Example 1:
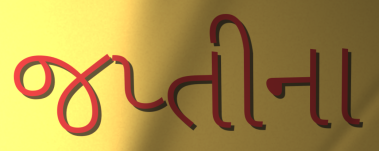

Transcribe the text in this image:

જપ્તીના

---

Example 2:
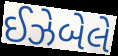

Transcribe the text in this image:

ઈઝેબેલે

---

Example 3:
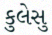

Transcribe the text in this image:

કુલેસુ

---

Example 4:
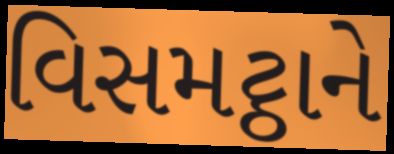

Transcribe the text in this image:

વિસમટ્ઠાને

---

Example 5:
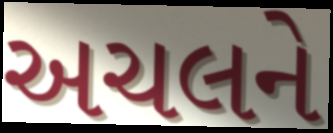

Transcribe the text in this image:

અચલને